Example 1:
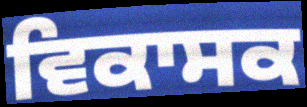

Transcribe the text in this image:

ਵਿਕਾਸਕ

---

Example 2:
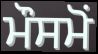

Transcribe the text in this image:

ਮੌਸਮੋਂ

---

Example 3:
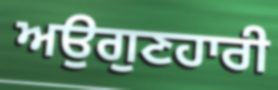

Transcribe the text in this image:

ਅਉਗੁਣਹਾਰੀ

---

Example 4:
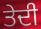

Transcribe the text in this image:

ਤੇਦੀ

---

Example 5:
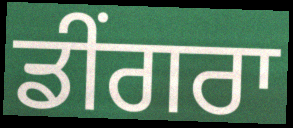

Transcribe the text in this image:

ਡੀਂਗਰਾ